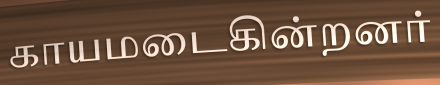
காயமடைகின்றனர்